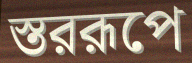
স্তররূপে